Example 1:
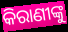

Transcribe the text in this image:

କିରାଣୀଙ୍କୁ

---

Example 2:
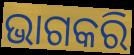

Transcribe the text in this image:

ଭାଗକରି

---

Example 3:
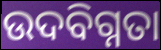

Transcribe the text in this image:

ଉଦବିଗ୍ନତା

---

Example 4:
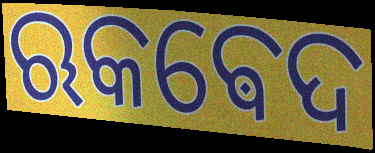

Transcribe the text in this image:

ଋକଵେଦ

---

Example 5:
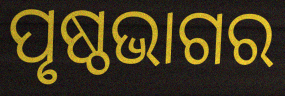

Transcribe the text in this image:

ପୃଷ୍ଠଭାଗର